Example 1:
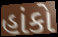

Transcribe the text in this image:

હાંકો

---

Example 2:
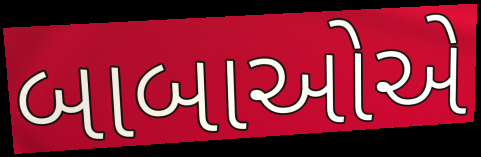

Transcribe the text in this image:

બાબાઓએ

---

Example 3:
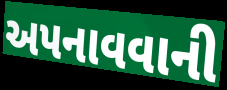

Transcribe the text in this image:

અપનાવવાની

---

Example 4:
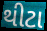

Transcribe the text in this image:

થીટા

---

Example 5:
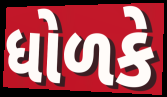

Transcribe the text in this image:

ધોળકે